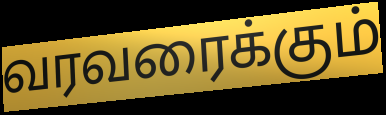
வரவரைக்கும்